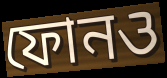
ফোনও